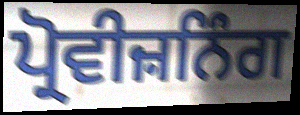
ਪ੍ਰੋਵੀਜ਼ਨਿੰਗ